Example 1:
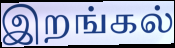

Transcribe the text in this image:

இறங்கல்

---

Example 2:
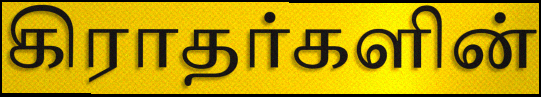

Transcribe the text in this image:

கிராதர்களின்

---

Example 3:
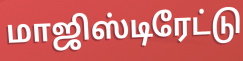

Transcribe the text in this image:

மாஜிஸ்டிரேட்டு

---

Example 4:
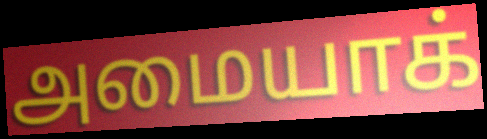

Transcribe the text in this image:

அமையாக்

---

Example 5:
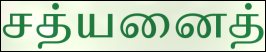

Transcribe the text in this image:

சத்யனைத்